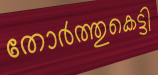
തോർത്തുകെട്ടി